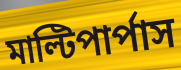
মাল্টিপার্পাস